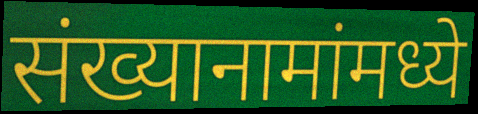
संख्यानामांमध्ये